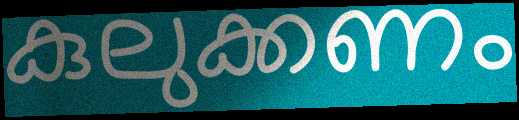
കുലുക്കണം